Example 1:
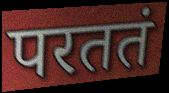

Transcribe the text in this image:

परततं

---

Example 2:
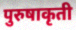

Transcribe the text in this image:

पुरुषाकृती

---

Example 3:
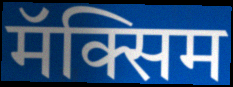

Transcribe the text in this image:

मॅक्सिम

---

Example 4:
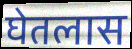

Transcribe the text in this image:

घेतलास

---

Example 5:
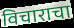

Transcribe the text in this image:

विचाराचा